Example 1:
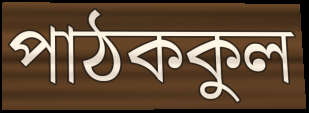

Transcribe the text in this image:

পাঠককুল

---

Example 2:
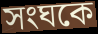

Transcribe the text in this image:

সংঘকে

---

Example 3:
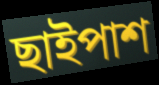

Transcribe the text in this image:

ছাইপাশ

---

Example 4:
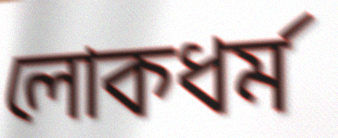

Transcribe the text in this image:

লোকধর্ম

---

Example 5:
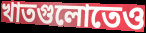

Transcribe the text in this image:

খাতগুলোতেও